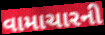
વામાચારની